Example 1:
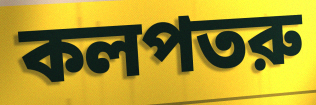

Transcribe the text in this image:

কলপতরু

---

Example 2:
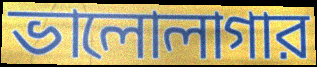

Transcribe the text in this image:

ভালোলাগার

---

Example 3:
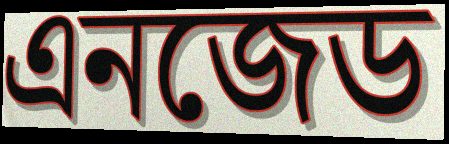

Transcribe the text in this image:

এনজেড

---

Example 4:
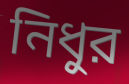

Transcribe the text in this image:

নিধুর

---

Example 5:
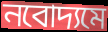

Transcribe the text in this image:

নবোদ্যমে